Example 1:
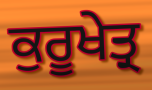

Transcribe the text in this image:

ਕੁਰੂਖੇਤ੍ਰ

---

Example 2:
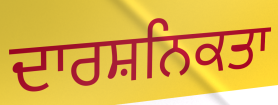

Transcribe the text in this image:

ਦਾਰਸ਼ਨਿਕਤਾ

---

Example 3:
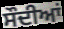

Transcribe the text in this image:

ਸੌਦੀਆਂ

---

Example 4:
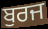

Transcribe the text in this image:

ਬੁਰਜ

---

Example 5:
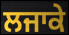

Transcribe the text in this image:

ਲਜਾਕੇ